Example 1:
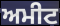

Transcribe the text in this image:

ਅਮੀਟ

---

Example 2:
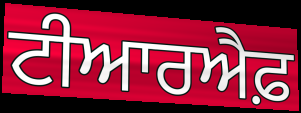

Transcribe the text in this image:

ਟੀਆਰਐਫ਼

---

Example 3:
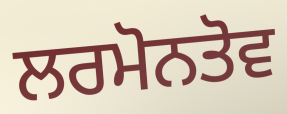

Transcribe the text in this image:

ਲਰਮੋਨਤੋਵ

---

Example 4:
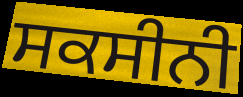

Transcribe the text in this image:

ਸਕਸੀਨੀ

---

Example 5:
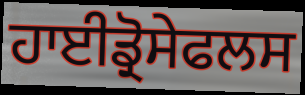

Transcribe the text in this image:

ਹਾਈਡ੍ਰੋਸੇਫਲਸ